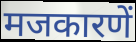
मजकारणें